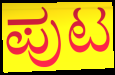
ಪುಟ